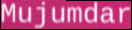
Mujumdar